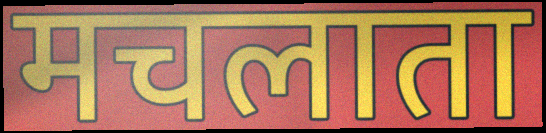
मचलाता